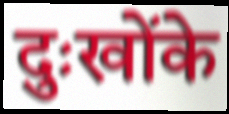
दुःखोंके